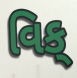
વિક્